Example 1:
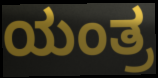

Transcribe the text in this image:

ಯಂತ್ರ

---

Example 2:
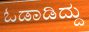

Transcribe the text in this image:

ಓಡಾಡಿದ್ದು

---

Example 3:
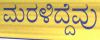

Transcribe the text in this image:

ಮರಳಿದ್ದೆವು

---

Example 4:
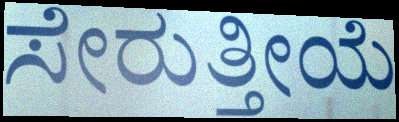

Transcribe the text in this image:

ಸೇರುತ್ತೀಯೆ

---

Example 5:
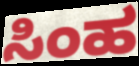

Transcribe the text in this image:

ಸಿಂಹ